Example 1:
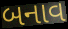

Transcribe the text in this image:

બનાવ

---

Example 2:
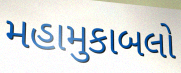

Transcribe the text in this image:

મહામુકાબલો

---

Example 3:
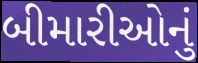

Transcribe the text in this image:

બીમારીઓનું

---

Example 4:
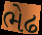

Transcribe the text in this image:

ભેઢ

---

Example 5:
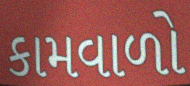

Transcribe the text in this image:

કામવાળો